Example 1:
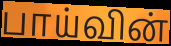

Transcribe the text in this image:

பாய்வின்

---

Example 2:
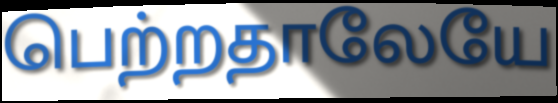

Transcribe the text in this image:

பெற்றதாலேயே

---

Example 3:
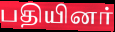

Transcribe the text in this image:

பதியினர்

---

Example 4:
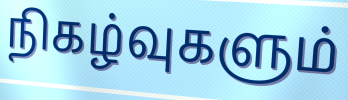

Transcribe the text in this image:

நிகழ்வுகளும்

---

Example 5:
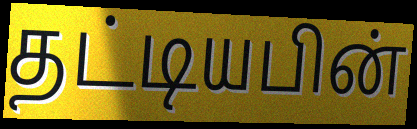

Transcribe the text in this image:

தட்டியபின்